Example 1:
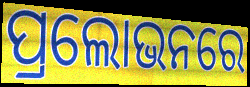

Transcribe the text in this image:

ପ୍ରଲୋଭନରେ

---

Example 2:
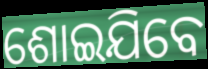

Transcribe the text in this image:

ଶୋଇଯିବେ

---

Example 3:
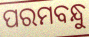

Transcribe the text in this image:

ପରମବନ୍ଧୁ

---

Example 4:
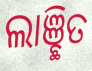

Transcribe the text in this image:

ଲାଞ୍ଛିତ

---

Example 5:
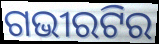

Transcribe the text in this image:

ଗଭୀରଟିର